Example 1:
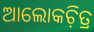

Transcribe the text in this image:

ଆଲୋକଚ଼ିତ୍ର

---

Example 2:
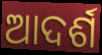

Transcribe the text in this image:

ଆଦର୍ଶ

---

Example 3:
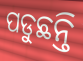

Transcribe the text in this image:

ପଡୁଛନ୍ତି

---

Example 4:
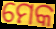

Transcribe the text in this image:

ମେକ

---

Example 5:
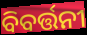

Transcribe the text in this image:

ବିବର୍ତ୍ତନୀ